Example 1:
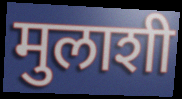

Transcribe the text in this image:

मुलाशी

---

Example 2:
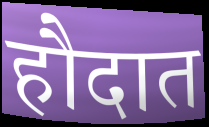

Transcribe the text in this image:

हौदात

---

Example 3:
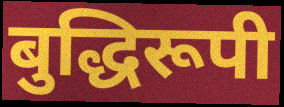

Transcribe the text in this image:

बुद्धिरूपी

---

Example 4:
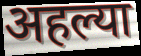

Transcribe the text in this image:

अहल्या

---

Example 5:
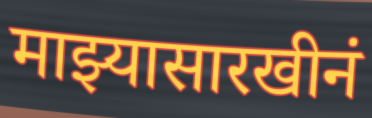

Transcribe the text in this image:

माझ्यासारखीनं